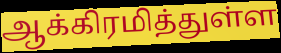
ஆக்கிரமித்துள்ள